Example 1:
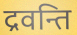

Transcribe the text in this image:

द्रवन्ति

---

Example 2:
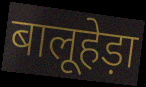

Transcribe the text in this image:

बालूहेड़ा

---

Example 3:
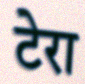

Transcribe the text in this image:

टेरा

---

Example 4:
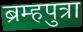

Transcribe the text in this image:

ब्रम्हपुत्रा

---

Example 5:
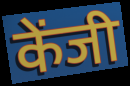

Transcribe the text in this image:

केंजी